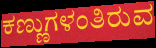
ಕಣ್ಣುಗಳಂತಿರುವ